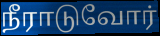
நீராடுவோர்